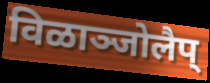
विळाञ्जोलैप्